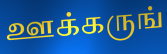
ஊக்கருங்